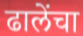
ढालेंचा